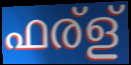
ഫര്ള്